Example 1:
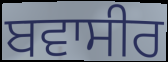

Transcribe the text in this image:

ਬਵਾਸੀਰ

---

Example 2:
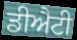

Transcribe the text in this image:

ਡੀਐਟੀ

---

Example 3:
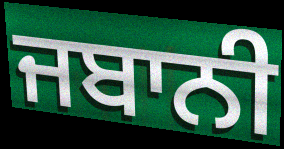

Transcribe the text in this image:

ਜਬਾਨੀ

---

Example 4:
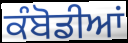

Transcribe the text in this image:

ਕੰਬੋਡੀਆਂ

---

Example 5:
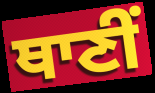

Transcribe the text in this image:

ਥਾਣੀਂ